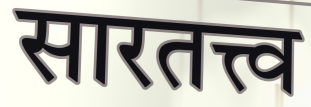
सारतत्त्व